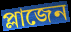
প্লাজেন